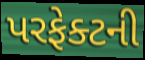
પરફેક્ટની